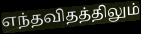
எந்தவிதத்திலும்